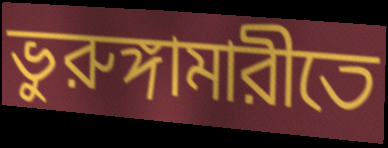
ভুরুঙ্গামারীতে